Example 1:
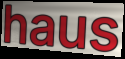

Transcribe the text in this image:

haus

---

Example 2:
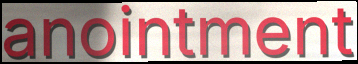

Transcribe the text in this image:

anointment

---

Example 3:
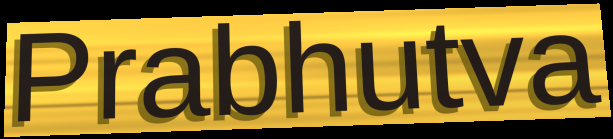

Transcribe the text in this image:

Prabhutva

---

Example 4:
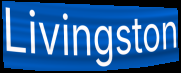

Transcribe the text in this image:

Livingston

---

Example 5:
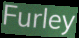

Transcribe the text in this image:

Furley